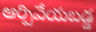
ఆర్పివేయబడ్డ